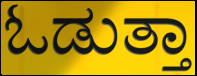
ಓಡುತ್ತಾ